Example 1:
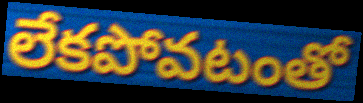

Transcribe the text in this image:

లేకపోవటంతో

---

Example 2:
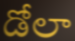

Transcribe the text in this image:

డోలా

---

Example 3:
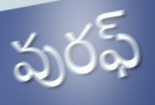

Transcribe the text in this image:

వురఫ్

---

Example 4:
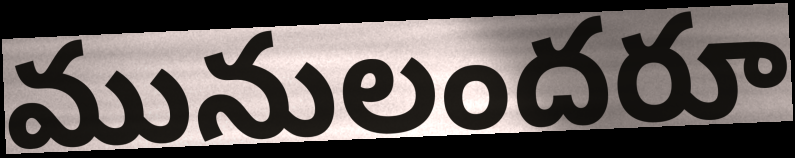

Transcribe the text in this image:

మునులందరూ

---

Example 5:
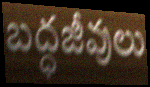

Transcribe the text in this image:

బద్ధజీవులు